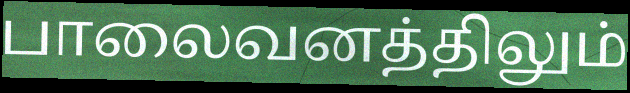
பாலைவனத்திலும்